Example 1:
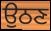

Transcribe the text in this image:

ਉਠਣ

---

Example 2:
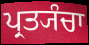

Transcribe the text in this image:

ਪ੍ਰਤ੍ਯੰਚਾ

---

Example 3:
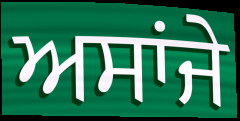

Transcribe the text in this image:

ਅਸਾਂਜੇ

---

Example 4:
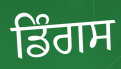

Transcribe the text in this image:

ਡਿੰਗਸ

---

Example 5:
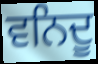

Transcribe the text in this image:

ਵਨਿਦੂ